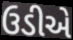
ઉડીએ